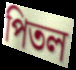
পিতল